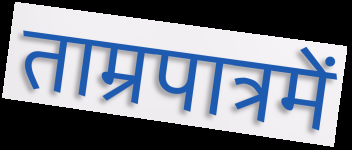
ताम्रपात्रमें